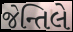
જેન્તિલે